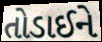
તોડાઈને